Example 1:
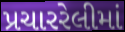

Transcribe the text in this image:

પ્રચારરેલીમાં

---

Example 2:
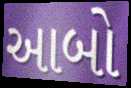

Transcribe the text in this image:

આબો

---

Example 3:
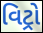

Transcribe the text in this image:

વિટ્રો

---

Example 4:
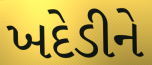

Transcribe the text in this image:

ખદેડીને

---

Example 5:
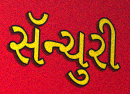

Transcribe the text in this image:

સૅન્ચુરી